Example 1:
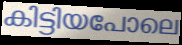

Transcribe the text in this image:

കിട്ടിയപോലെ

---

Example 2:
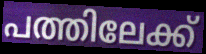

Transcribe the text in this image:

പത്തിലേക്ക്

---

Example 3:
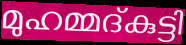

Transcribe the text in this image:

മുഹമ്മദ്കുട്ടി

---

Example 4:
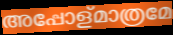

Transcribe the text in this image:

അപ്പോള്മാത്രമേ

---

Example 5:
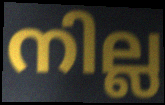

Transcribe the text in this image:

നില്ല